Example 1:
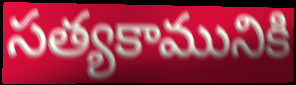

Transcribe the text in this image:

సత్యకామునికి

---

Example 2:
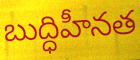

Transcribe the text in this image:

బుద్ధిహీనత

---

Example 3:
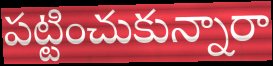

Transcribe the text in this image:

పట్టించుకున్నారా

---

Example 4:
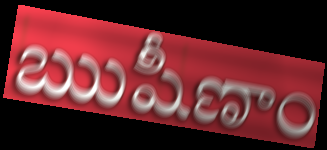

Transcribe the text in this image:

ఋషీణాం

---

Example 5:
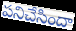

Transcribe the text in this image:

పనిచేసిందా